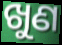
ଖୁଣ